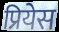
प्रियेस